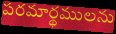
పరమార్థములను